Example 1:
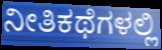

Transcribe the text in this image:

ನೀತಿಕಥೆಗಳಲ್ಲಿ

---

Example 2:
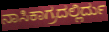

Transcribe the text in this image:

ನಾಸಿಕಾಗ್ರದಲ್ಲಿರ್ದು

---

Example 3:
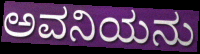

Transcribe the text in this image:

ಅವನಿಯನು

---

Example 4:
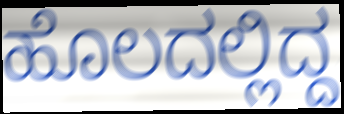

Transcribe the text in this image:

ಹೊಲದಲ್ಲಿದ್ದ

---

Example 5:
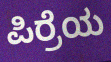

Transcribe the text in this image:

ಪಿರ್ರೆಯ